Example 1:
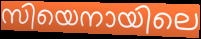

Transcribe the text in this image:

സിയെനായിലെ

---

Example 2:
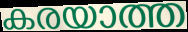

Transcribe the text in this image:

കരയാത്ത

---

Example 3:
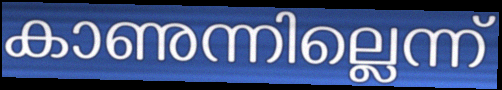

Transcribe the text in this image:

കാണുന്നില്ലെന്ന്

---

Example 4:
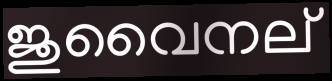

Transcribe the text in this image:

ജുവൈനല്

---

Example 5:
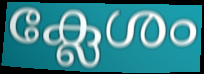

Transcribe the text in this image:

ക്ലേശം